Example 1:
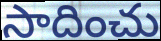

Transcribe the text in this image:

సాదించు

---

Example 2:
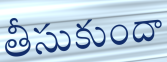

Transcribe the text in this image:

తీసుకుందా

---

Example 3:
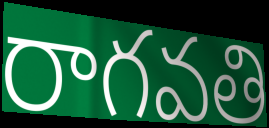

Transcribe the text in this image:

రాగవతి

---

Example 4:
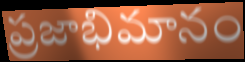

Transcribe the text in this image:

ప్రజాభిమానం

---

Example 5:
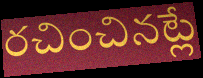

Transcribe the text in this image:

రచించినట్లే